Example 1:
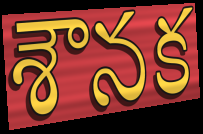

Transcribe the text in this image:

శౌనక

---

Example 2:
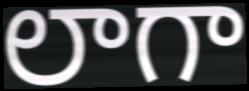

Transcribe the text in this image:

లాగా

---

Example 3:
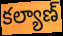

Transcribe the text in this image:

కల్యాణ్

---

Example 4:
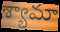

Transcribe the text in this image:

శ్యామా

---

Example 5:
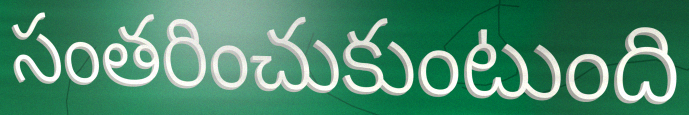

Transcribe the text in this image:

సంతరించుకుంటుంది